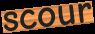
scour